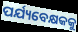
ପର୍ଯ୍ୟବେକ୍ଷକକୁ